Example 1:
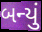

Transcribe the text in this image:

બન્યું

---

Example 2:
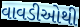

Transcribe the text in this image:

વાવડીઓથી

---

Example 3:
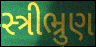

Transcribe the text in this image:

સ્ત્રીભ્રુણ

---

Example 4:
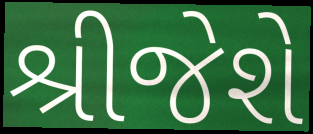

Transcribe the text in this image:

શ્રીજેશે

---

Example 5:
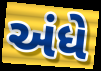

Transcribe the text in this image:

અંધે